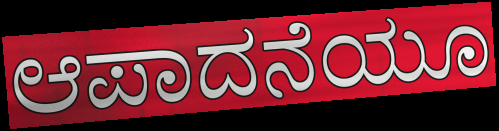
ಆಪಾದನೆಯೂ